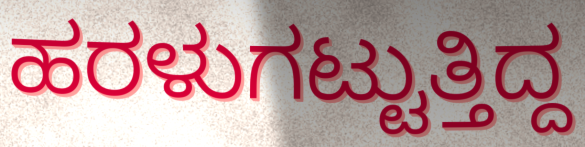
ಹರಳುಗಟ್ಟುತ್ತಿದ್ದ